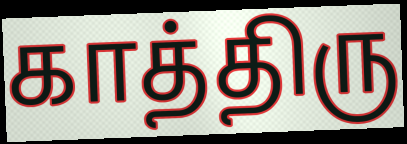
காத்திரு